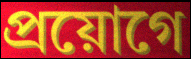
প্ৰয়োগে